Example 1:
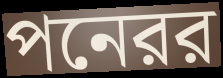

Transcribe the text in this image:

পনেরর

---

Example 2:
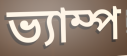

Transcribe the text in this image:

ভ্যাম্প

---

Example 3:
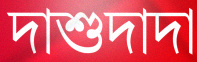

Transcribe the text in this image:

দাশুদাদা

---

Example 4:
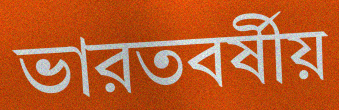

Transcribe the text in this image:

ভারতবর্ষীয়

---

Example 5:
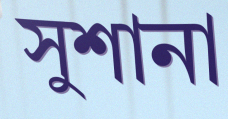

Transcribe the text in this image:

সুশানা